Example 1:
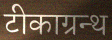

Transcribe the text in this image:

टीकाग्रन्थ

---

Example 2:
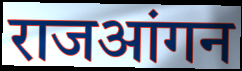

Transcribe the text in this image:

राजआंगन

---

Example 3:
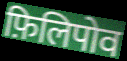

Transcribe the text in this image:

फ़िलिपोव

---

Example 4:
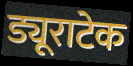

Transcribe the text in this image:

ड्यूराटेक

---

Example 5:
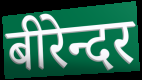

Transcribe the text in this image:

बीरेन्दर